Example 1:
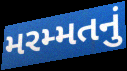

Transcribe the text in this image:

મરમ્મતનું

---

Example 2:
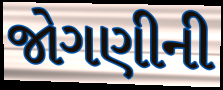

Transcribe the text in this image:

જોગણીની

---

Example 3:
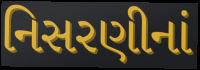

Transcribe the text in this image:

નિસરણીનાં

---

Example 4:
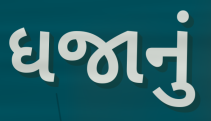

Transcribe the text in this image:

ધજાનું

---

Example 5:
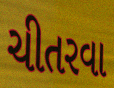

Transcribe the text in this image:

ચીતરવા